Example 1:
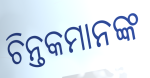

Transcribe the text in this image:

ଚିନ୍ତକମାନଙ୍କ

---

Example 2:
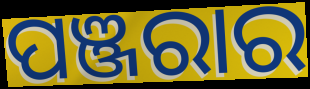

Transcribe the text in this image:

ପଞ୍ଜରାର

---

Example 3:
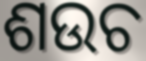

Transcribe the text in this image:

ଶଉଚ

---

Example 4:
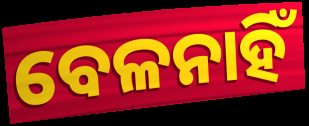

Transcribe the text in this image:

ବେଳନାହିଁ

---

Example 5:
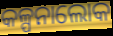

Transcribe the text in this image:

କଳ୍ପନାଲୋକ